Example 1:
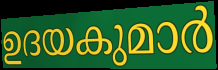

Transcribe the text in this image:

ഉദയകുമാർ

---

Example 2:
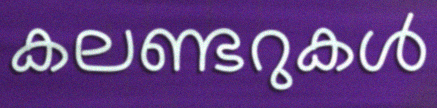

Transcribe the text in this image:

കലണ്ടറുകൾ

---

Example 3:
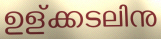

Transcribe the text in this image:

ഉള്ക്കടലിനു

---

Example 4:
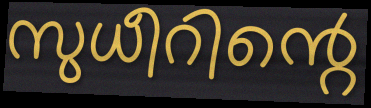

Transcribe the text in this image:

സുധീറിന്റെ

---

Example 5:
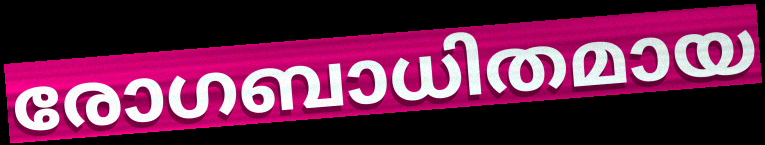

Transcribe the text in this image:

രോഗബാധിതമായ